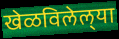
खेळविलेल्या